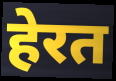
हेरत